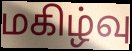
மகிழ்வு